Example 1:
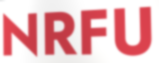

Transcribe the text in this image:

NRFU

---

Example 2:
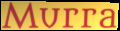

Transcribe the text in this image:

Murra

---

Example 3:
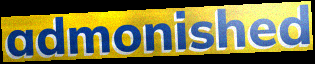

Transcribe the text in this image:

admonished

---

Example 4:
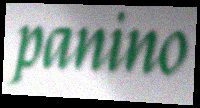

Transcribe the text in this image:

panino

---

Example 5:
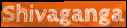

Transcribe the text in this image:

Shivaganga